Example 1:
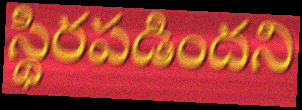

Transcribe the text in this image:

స్థిరపడిందని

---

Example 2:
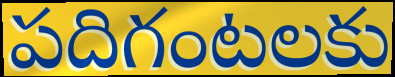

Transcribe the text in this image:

పదిగంటలకు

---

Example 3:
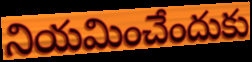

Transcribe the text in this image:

నియమించేందుకు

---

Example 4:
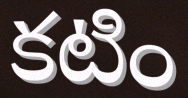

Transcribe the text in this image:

కటిం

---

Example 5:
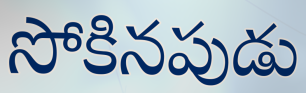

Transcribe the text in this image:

సోకినపుడు